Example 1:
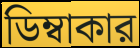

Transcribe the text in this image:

ডিম্বাকার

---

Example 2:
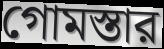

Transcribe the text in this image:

গোমস্তার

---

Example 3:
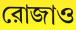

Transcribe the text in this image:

রোজাও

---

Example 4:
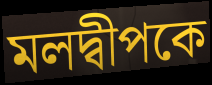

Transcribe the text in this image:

মলদ্বীপকে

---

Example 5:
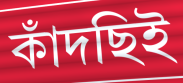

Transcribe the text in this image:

কাঁদছিই